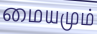
மையமும்